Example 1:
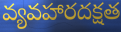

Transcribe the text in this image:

వ్యవహారదక్షత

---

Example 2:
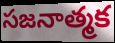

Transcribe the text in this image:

సజనాత్మక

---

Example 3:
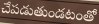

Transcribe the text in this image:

చేపడుతుండటంతో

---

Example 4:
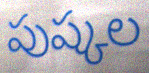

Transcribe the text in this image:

పుష్కల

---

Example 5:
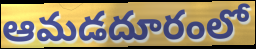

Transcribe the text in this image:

ఆమడదూరంలో